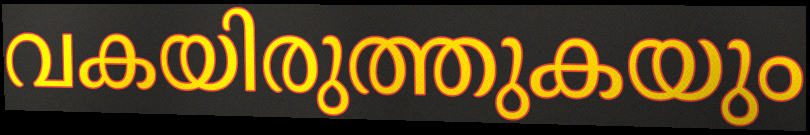
വകയിരുത്തുകയും